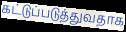
கட்டுப்படுத்துவதாக